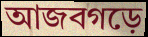
আজবগড়ে